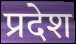
प्रदेश